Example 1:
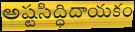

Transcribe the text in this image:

అష్టసిద్ధిదాయకం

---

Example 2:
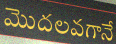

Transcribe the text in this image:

మొదలవగానే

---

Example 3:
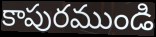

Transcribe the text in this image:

కాపురముండి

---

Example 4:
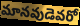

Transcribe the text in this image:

మానవుడెవరో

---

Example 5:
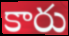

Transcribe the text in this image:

కారు